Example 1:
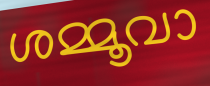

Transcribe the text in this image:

ശമ്മൂവാ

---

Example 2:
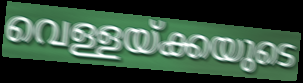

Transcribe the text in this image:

വെള്ളയ്ക്കയുടെ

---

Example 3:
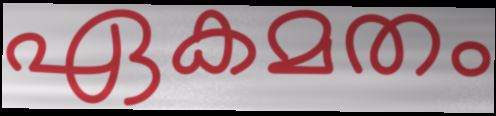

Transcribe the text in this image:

ഏകമതം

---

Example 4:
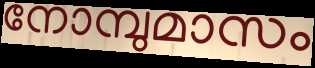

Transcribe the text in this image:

നോമ്പുമാസം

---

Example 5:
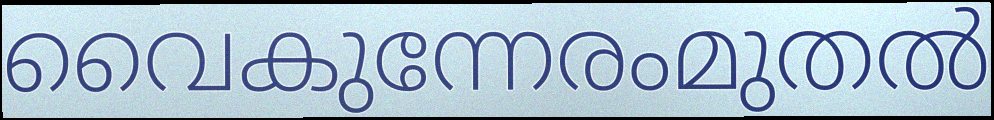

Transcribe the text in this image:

വൈകുന്നേരംമുതൽ